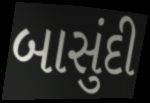
બાસુંદી